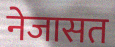
नेजासत